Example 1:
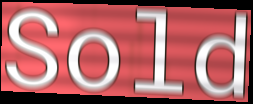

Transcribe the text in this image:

Sold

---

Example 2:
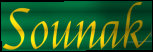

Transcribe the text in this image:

Sounak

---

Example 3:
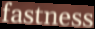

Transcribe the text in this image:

fastness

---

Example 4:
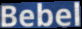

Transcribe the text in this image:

Bebel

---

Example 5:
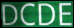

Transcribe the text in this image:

DCDE